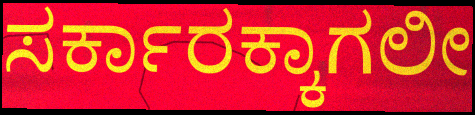
ಸರ್ಕಾರಕ್ಕಾಗಲೀ